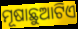
ମୂଷାଛୁଆଟିଏ